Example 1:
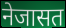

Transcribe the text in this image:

नेजासत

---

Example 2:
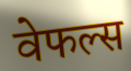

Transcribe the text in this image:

वेफल्स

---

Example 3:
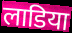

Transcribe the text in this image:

लाडिया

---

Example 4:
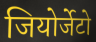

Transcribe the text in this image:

जियोर्जेटो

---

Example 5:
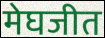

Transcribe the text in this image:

मेघजीत